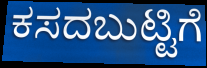
ಕಸದಬುಟ್ಟಿಗೆ